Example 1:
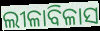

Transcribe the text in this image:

ଲୀଳାବିଳାସ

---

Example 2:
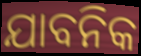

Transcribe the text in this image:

ଯାବନିକ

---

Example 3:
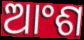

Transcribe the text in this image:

ଆଂଶ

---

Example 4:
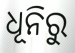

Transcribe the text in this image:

ଧୂନିରୁ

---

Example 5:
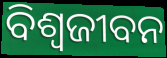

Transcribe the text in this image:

ବିଶ୍ଵଜୀବନ